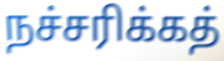
நச்சரிக்கத்